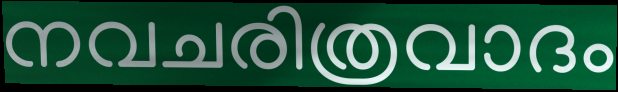
നവചരിത്രവാദം